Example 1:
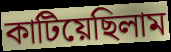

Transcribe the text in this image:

কাটিয়েছিলাম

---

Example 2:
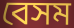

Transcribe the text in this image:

বেসম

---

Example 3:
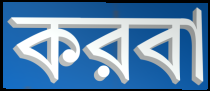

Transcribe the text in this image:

করবা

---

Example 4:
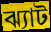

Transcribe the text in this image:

ঝ্যাট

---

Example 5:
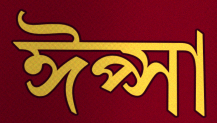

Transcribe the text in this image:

ঈপ্সা